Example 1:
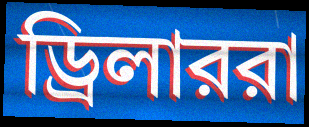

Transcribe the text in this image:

ড্রিলাররা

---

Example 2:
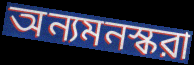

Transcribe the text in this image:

অন্যমনস্করা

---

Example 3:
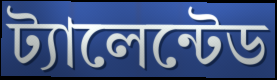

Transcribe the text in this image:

ট্যালেন্টেড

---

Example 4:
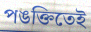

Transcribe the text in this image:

পঙক্তিতেই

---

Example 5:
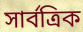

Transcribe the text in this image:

সার্বত্রিক